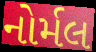
નોર્મલ